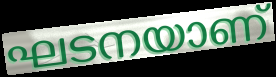
ഘടനയാണ്